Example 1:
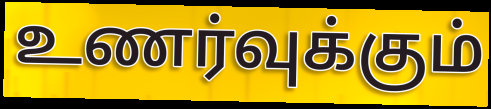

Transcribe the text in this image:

உணர்வுக்கும்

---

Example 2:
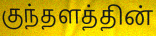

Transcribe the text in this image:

குந்தளத்தின்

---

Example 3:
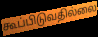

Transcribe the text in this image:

கூப்பிடுவதில்லை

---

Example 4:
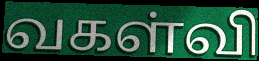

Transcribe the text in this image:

வகள்வி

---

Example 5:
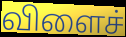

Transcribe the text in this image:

விளைச்